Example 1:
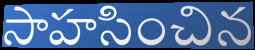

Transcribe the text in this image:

సాహసించిన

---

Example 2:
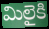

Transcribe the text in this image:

మిలైకి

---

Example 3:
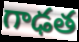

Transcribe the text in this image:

గాఢత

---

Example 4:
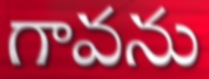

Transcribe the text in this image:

గావను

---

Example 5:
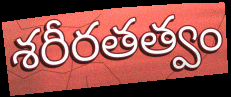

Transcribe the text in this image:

శరీరతత్వం